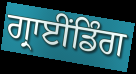
ਗ੍ਰਾਈਂਡਿੰਗ